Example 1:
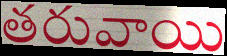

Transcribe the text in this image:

తరువాయి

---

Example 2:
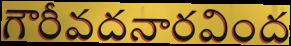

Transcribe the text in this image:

గౌరీవదనారవింద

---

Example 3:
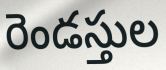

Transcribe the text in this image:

రెండస్తుల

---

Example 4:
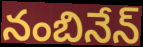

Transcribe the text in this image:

నంబినేన్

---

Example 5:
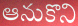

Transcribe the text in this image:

ఆనుకొని